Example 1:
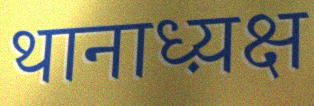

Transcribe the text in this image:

थानाध्य़क्ष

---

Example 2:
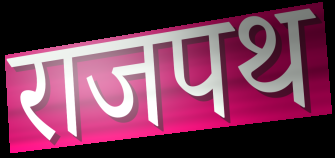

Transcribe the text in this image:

राजपथ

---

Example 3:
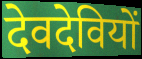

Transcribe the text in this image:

देवदेवियों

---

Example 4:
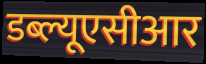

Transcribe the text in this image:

डब्ल्यूएसीआर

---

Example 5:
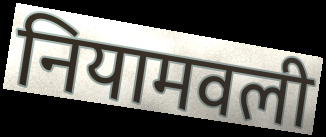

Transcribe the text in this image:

नियामवली